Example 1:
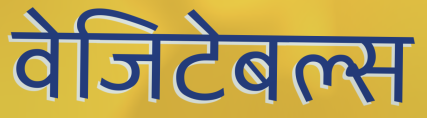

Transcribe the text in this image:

वेजिटेबल्स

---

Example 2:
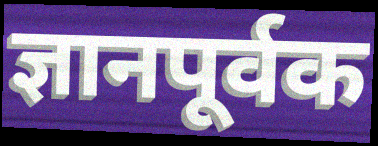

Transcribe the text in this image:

ज्ञानपूर्वक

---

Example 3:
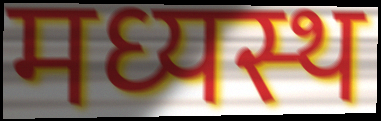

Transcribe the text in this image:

मध्यस्थ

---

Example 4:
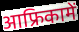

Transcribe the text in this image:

आफ्रिकामें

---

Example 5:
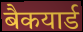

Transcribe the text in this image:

बैकयार्ड